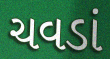
ચવડાં